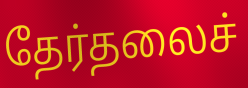
தேர்தலைச்